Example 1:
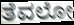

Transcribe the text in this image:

ತೆವಲೋ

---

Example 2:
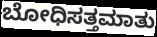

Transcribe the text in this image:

ಬೋಧಿಸತ್ತಮಾತು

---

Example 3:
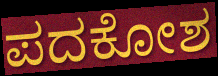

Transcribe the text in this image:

ಪದಕೋಶ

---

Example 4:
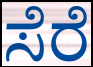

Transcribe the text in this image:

ಸೆರೆ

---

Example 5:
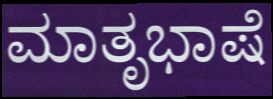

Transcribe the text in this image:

ಮಾತೃಭಾಷೆ